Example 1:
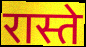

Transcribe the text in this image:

रास्ते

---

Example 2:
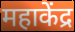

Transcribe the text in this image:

महाकेंद्र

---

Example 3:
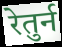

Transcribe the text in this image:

रेतुर्न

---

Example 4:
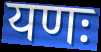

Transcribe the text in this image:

यणः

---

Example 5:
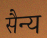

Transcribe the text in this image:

सैन्य